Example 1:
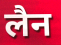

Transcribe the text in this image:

लैन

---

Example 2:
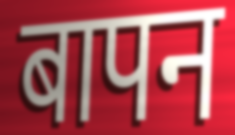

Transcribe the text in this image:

बापन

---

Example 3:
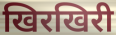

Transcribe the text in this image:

खिरखिरी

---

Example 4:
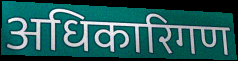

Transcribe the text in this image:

अधिकारिगण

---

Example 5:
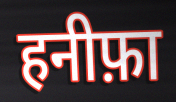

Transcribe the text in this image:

हनीफ़ा